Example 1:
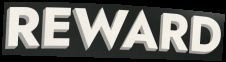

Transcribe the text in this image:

REWARD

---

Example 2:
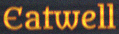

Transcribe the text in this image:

Eatwell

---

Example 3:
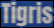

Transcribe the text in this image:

Tigris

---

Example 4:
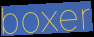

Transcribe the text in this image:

boxer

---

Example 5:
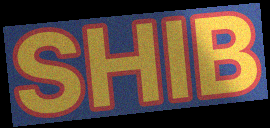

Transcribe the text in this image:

SHIB